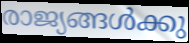
രാജ്യങ്ങൾക്കു